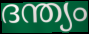
ദന്ത്യം